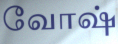
வோஷ்